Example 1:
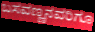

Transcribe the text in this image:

ಬಸವಣ್ಣನವರಿಗೂ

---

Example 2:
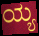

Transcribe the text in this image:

ಯ್ಯ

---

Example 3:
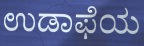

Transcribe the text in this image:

ಉಡಾಫೆಯ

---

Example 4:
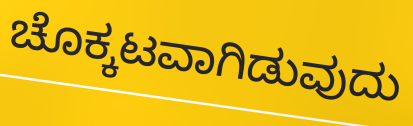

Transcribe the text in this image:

ಚೊಕ್ಕಟವಾಗಿಡುವುದು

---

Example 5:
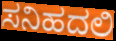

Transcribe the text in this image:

ಸನಿಹದಲಿ